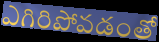
ఎగిరిపోవడంతో